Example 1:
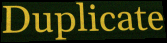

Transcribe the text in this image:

Duplicate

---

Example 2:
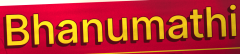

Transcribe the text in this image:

Bhanumathi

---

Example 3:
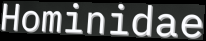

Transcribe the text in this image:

Hominidae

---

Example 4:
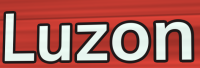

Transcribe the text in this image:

Luzon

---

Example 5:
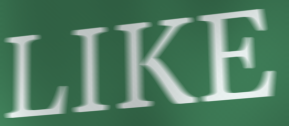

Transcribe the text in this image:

LIKE